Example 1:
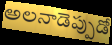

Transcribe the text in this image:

అలనాడెప్పుడో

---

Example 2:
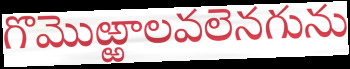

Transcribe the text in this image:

గొమొఱ్ఱాలవలెనగును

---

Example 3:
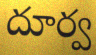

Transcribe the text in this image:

దూర్వ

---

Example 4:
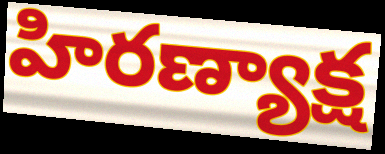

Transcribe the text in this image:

హిరణ్యాక్ష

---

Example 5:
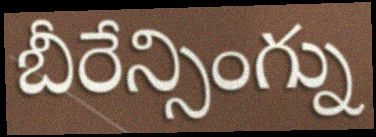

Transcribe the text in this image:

బీరేన్సింగ్ను